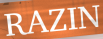
RAZIN